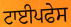
ਟਾਈਪਫੇਸ